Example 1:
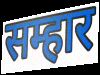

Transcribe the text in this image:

सम्हार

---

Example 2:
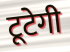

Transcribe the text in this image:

टूटेगी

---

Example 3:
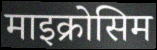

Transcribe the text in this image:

माइक्रोसिम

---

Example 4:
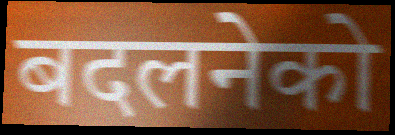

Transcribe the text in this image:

बदलनेको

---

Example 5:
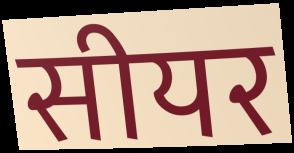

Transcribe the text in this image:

सीयर